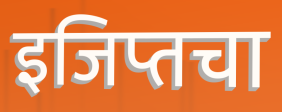
इजिप्तचा